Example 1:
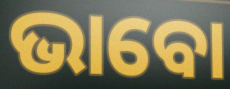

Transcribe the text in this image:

ଭାବୋ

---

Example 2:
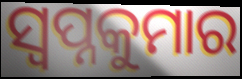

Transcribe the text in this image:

ସ୍ଵପ୍ନକୁମାର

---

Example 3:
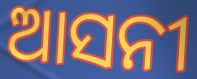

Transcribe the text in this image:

ଆସନୀ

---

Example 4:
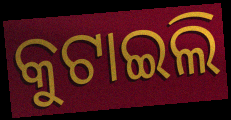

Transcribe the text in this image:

କୁଟାଇଲି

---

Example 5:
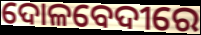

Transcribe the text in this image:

ଦୋଳବେଦୀରେ